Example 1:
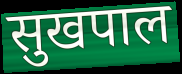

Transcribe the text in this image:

सुखपाल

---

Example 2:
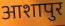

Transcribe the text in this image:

आशापुर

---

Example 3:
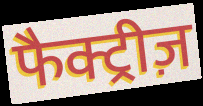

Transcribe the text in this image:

फैक्ट्रीज़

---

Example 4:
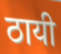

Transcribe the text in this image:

ठायी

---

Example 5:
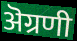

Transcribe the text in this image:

ऄग्रणी